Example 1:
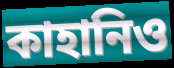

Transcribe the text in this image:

কাহানিও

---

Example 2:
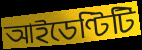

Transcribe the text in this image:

আইডেণ্টিটি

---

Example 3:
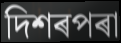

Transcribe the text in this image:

দিশৰপৰা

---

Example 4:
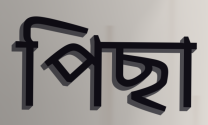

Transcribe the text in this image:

পিছা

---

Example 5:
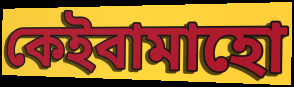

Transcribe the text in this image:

কেইবামাহো